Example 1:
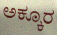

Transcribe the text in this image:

ಅಕ್ಕೂರ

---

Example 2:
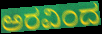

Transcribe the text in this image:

ಅರವಿಂದ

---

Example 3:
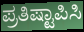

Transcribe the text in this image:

ಪ್ರತಿಷ್ಟಾಪಿಸಿ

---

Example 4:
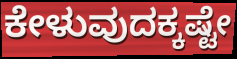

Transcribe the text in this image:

ಕೇಳುವುದಕ್ಕಷ್ಟೇ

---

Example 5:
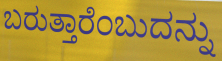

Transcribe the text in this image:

ಬರುತ್ತಾರೆಂಬುದನ್ನು